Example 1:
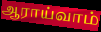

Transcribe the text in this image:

ஆராய்வாம்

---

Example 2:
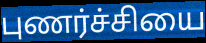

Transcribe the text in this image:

புணர்ச்சியை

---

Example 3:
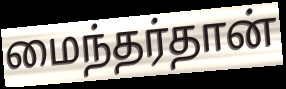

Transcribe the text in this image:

மைந்தர்தான்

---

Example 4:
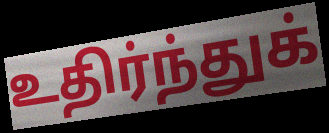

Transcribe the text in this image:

உதிர்ந்துக்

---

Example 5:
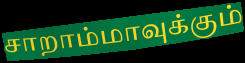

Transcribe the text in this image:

சாறாம்மாவுக்கும்